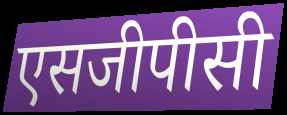
एसजीपीसी